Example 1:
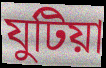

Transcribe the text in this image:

যুটিয়া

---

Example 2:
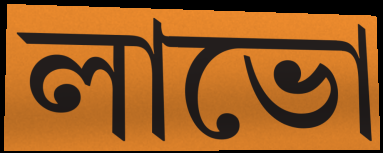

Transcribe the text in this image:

লাভো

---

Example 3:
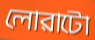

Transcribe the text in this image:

লোৱাটো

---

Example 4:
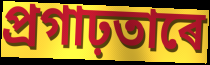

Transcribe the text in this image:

প্ৰগাঢ়তাৰে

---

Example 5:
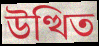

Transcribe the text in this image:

উত্থিত